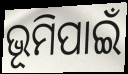
ଭୂମିପାଇଁ